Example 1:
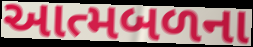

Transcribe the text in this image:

આત્મબળના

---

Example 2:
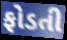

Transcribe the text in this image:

ફોડતી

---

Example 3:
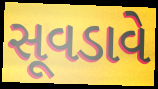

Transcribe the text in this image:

સૂવડાવે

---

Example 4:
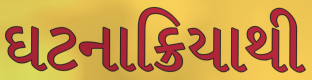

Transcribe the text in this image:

ઘટનાક્રિયાથી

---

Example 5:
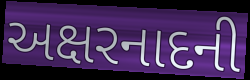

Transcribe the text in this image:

અક્ષરનાદની